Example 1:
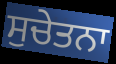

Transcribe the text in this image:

ਸੁਚੇਤਨਾ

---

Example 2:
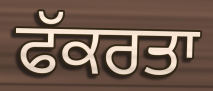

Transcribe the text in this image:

ਫੱਕਰਤਾ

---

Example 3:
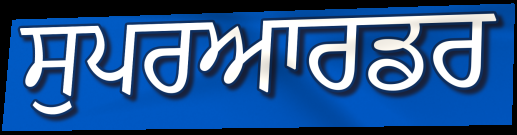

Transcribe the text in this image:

ਸੁਪਰਆਰਡਰ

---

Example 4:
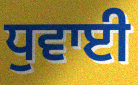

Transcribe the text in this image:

ਧੁਵਾਈ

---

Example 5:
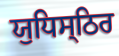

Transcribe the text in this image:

ਯੁਧਿਸ੍ਠਿਰ